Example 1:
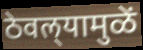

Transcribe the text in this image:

ठेवल्यामुळें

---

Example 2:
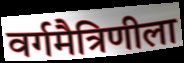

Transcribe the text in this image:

वर्गमैत्रिणीला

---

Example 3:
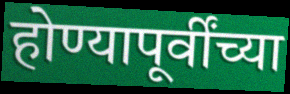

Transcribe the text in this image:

होण्यापूर्वींच्या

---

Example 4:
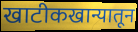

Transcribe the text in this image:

खाटीकखान्यातून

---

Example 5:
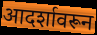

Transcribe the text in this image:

आदर्शावरून